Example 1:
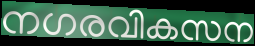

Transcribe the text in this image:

നഗരവികസന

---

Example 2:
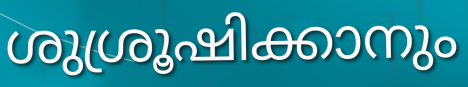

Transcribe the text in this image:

ശുശ്രൂഷിക്കാനും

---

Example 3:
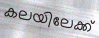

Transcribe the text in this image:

കലയിലേക്ക്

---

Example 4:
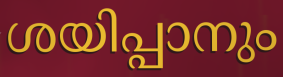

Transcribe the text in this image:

ശയിപ്പാനും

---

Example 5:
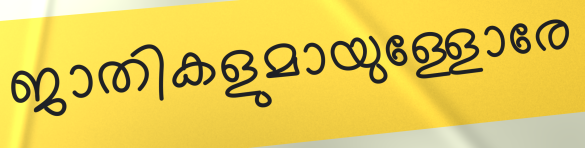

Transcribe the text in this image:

ജാതികളുമായുള്ളോരേ